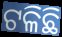
ଟଳିଛି